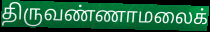
திருவண்ணாமலைக்